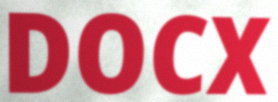
DOCX